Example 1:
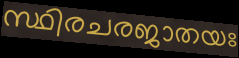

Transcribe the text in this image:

സ്ഥിരചരജാതയഃ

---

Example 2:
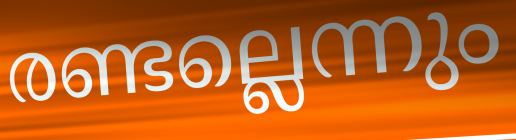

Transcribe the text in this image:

രണ്ടല്ലെന്നും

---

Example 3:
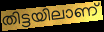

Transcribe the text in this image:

തിട്ടയിലാണ്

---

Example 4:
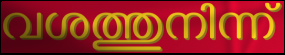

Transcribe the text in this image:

വശത്തുനിന്ന്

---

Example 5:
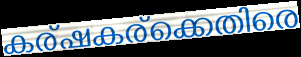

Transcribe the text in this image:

കര്ഷകര്ക്കെതിരെ